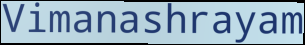
Vimanashrayam